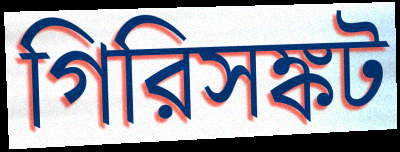
গিরিসঙ্কট